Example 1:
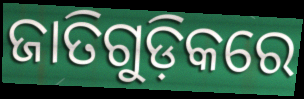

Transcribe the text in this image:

ଜାତିଗୁଡ଼ିକରେ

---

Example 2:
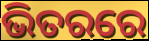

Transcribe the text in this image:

ଭିତରରେ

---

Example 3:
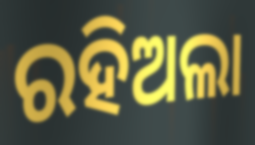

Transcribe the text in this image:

ରହିଅଲା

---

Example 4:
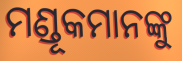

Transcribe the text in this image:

ମଣ୍ଡୂକମାନଙ୍କୁ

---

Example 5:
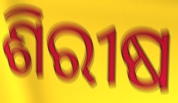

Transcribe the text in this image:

ଶିରୀଷ